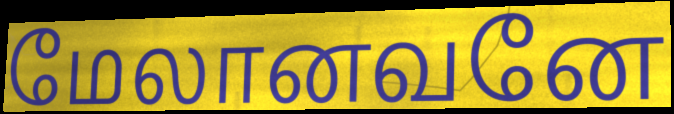
மேலானவனே